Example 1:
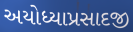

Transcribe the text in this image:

અયોધ્યાપ્રસાદજી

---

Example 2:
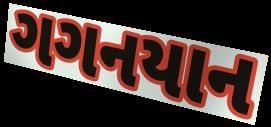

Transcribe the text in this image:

ગગનયાન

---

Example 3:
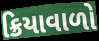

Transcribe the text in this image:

ક્રિયાવાળો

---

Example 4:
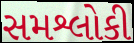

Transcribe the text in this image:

સમશ્લોકી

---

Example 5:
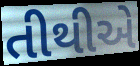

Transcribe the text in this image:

તીથીએ